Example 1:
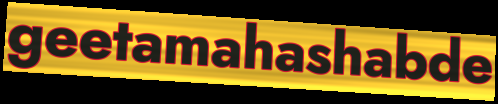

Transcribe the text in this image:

geetamahashabde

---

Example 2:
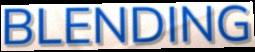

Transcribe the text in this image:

BLENDING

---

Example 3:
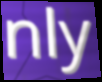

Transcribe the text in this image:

nly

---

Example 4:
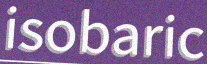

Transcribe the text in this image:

isobaric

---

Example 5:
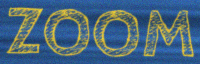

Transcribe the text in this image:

ZOOM